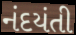
નંદયંતી